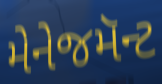
મેનેજમૅન્ટ